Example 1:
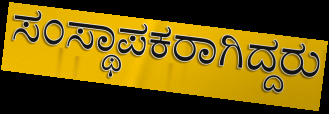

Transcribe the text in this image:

ಸಂಸ್ಥಾಪಕರಾಗಿದ್ದರು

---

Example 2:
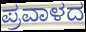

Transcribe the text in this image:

ಪ್ರವಾಳದ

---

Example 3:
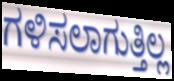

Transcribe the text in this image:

ಗಳಿಸಲಾಗುತ್ತಿಲ್ಲ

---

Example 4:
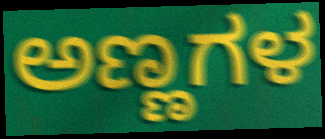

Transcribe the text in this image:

ಅಣ್ಣಗಳ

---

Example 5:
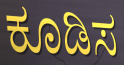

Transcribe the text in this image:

ಕೂಡಿಸ